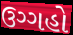
ઉગ્ગહો